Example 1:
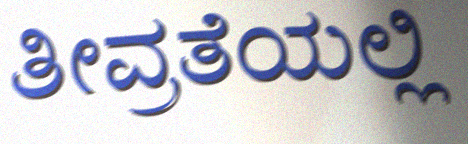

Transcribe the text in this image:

ತೀವ್ರತೆಯಲ್ಲಿ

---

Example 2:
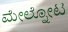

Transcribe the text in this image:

ಮೇಲ್ನೋಟ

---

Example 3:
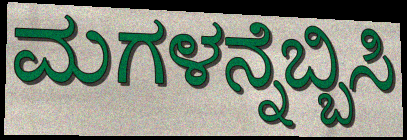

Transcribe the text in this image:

ಮಗಳನ್ನೆಬ್ಬಿಸಿ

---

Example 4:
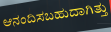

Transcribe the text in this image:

ಆನಂದಿಸಬಹುದಾಗಿತ್ತು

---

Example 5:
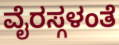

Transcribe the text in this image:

ವೈರಸ್ಗಳಂತೆ